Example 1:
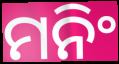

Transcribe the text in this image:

ମନିଂ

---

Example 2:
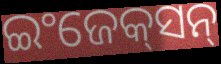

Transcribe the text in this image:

ଇଂଜେକ୍‌ସନ୍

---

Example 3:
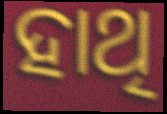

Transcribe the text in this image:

ହାଥି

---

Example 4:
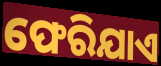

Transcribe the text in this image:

ଫେରିଯାଏ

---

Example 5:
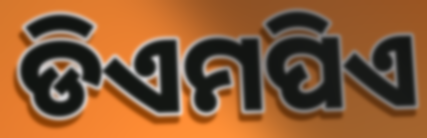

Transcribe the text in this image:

ଡିଏମପିଏ